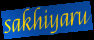
sakhiyaru